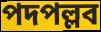
পদপল্লব